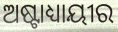
ଅଷ୍ଟାଧ୍ଯାୟୀର